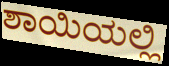
ಶಾಯಿಯಲ್ಲಿ